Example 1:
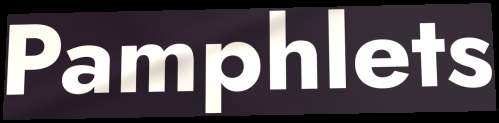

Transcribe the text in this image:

Pamphlets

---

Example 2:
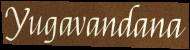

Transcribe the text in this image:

Yugavandana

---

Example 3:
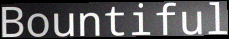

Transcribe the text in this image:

Bountiful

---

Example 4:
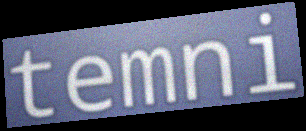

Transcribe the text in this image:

temni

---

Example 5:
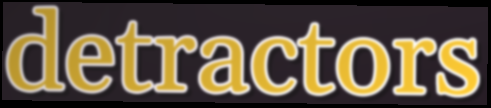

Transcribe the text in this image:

detractors